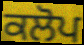
ਕਲੋਪ